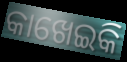
କାଖେଇକି